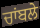
ਚਾਂਬਲੇ